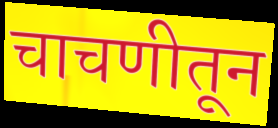
चाचणीतून